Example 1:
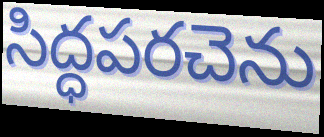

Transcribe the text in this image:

సిద్ధపరచెను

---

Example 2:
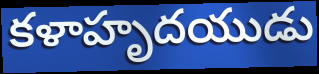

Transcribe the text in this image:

కళాహృదయుడు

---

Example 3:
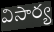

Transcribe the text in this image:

విసార్య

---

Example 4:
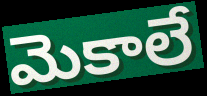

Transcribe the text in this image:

మెకాలే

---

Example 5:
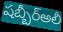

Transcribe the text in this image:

షబ్బీర్అలీ